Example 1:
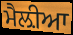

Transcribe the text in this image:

ਮੈਲ਼ੀਆ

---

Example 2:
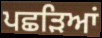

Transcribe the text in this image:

ਪਛੜਿਆਂ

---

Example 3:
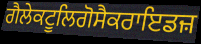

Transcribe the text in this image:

ਗੈਲੇਕਟੂਲਿਗੋਸੈਕਰਾਇਡਜ਼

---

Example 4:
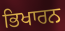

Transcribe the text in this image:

ਭਿਖਾਰਨ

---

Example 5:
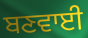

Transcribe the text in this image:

ਬਣਵਾਈ